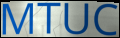
MTUC